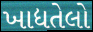
ખાદ્યતેલો